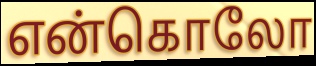
என்கொலோ